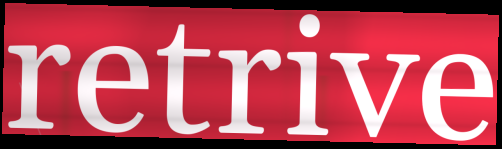
retrive